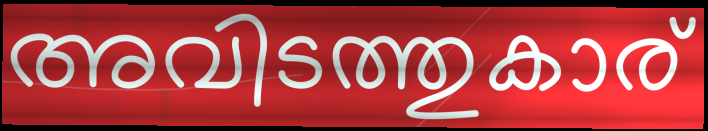
അവിടത്തുകാര്